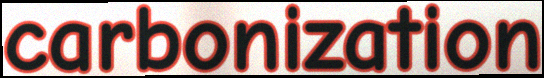
carbonization